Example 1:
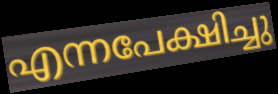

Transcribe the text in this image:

എന്നപേക്ഷിച്ചു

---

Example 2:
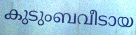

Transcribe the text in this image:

കുടുംബവീടായ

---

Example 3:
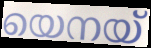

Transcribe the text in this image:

യെനയ്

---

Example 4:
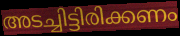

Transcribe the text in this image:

അടച്ചിട്ടിരിക്കണം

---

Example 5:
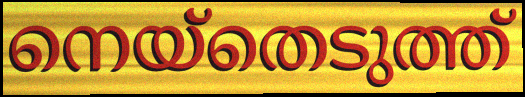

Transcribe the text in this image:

നെയ്തെടുത്ത്